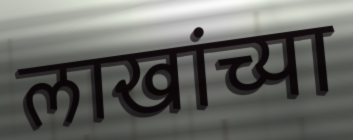
लाखांच्या